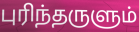
புரிந்தருளும்